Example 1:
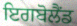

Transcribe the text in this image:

ਇਗਬੋਲੈਂਡ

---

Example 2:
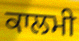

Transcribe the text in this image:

ਕਾਲਮੀ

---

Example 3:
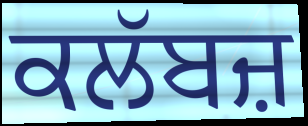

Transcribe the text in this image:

ਕਲੱਬਜ਼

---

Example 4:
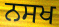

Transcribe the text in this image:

ਨਸਖ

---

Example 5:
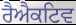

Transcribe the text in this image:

ਰੈਐਕਟਿਵ